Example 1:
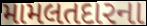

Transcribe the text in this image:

મામલતદારના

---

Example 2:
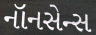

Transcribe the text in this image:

નૉનસેન્સ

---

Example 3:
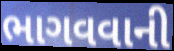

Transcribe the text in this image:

ભાગવવાની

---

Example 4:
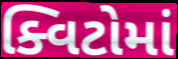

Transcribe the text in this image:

ક્વિટોમાં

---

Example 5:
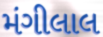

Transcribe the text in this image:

મંગીલાલ